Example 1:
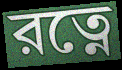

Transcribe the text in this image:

রত্নে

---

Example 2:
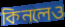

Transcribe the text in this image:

কিনলেও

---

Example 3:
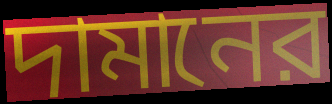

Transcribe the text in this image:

দামানের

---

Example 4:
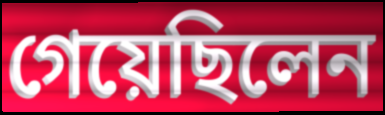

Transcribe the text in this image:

গেয়েছিলেন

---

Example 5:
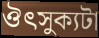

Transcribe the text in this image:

ঔৎসুক্যটা